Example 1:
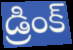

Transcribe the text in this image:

డ్రింక్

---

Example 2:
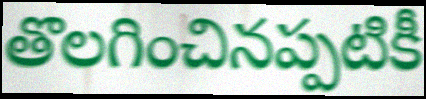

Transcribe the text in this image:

తొలగించినప్పటికీ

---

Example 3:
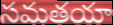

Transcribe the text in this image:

సమతయా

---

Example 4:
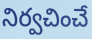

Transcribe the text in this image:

నిర్వచించే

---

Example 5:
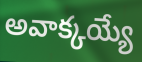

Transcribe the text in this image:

అవాక్కయ్యే